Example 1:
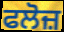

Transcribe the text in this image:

ਫਲੋਜ਼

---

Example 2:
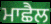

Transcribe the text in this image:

ਮਾਛੈਲ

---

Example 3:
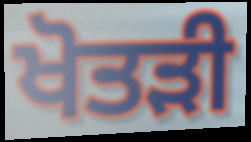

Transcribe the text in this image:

ਖੋਤੜੀ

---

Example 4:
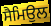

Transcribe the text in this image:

ਸੈਮਿਉਲ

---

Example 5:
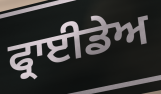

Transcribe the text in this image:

ਫ੍ਰਾਈਡੇਅ